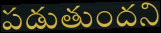
పడుతుందని